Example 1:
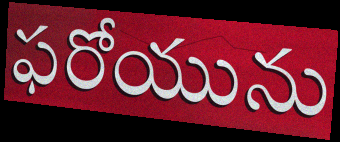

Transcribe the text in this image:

ఫరోయును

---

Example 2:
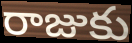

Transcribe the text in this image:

రాజుకు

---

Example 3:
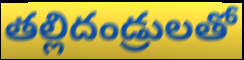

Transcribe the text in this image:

తల్లిదండ్రులతో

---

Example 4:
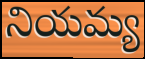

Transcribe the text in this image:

నియమ్య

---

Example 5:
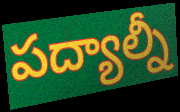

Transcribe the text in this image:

పద్యాల్నీ